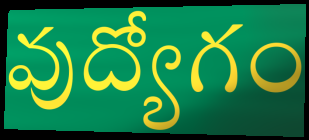
వుద్యోగం